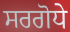
ਸਰਗੋਧੇ